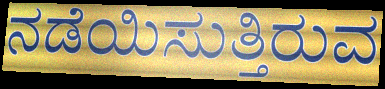
ನಡೆಯಿಸುತ್ತಿರುವ